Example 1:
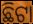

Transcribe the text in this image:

ଛିଟା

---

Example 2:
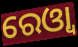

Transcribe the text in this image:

ରେଓ୍ବା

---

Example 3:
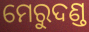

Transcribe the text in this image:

ମେରୁଦଣ୍ଡ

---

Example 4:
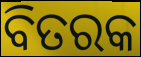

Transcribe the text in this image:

ବିତରକ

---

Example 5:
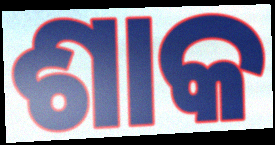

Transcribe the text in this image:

ଶାକ